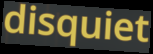
disquiet